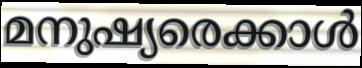
മനുഷ്യരെക്കാൾ